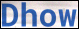
Dhow